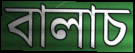
বালাচ